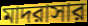
মাদরাসার